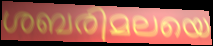
ശബരിമലയെ